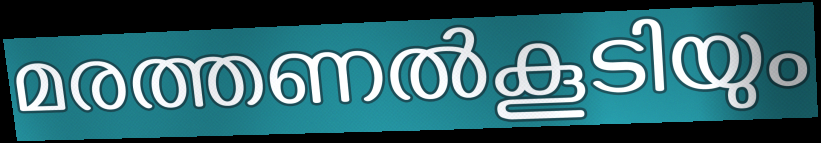
മരത്തണൽകൂടിയും